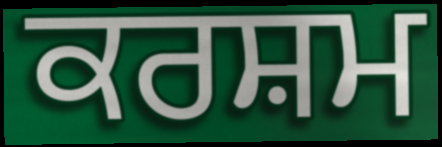
ਕਰਸ਼ਮ